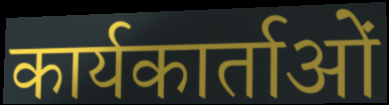
कार्यकार्ताओं